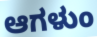
ಆಗಳುಂ